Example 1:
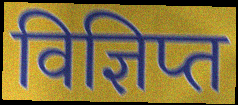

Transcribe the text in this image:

विज्ञिप्त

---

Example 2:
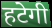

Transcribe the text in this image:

हटेगी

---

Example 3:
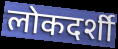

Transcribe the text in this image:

लोकदर्शी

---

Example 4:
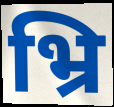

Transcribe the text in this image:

भ्रि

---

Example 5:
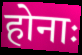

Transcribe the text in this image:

होनाः